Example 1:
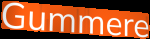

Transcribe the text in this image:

Gummere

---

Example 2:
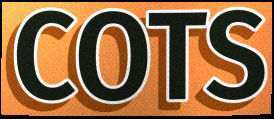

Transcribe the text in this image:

COTS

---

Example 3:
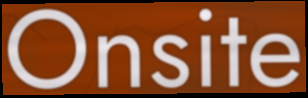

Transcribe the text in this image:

Onsite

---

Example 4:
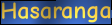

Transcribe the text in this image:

Hasaranga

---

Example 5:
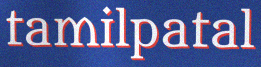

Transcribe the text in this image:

tamilpatal